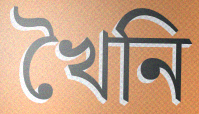
খৈনি